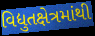
વિદ્યુતક્ષેત્રમાંથી